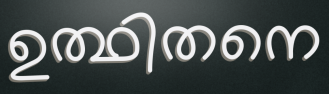
ഉത്ഥിതനെ